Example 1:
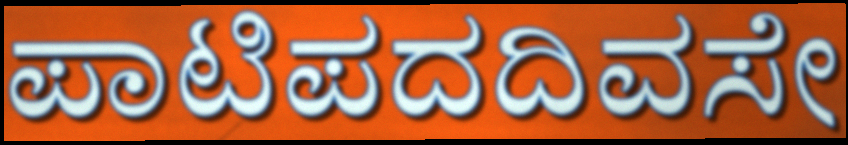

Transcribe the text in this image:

ಪಾಟಿಪದದಿವಸೇ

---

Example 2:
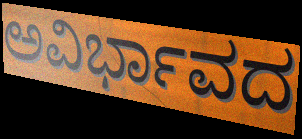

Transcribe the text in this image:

ಅವಿರ್ಭಾವದ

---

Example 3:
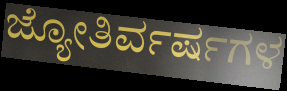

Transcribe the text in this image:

ಜ್ಯೋತಿರ್ವರ್ಷಗಳ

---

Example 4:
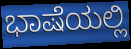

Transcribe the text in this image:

ಭಾಷೆಯಲ್ಲಿ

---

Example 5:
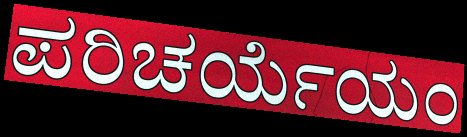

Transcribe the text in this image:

ಪರಿಚರ್ಯೆಯಂ